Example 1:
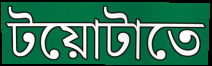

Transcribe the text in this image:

টয়োটাতে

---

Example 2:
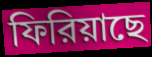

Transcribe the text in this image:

ফিরিয়াছে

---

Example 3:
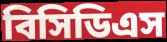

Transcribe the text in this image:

বিসিডিএস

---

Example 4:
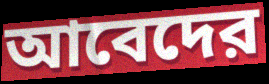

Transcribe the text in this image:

আবেদের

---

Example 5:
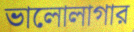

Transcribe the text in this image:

ভালোলাগার